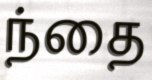
ந்தை